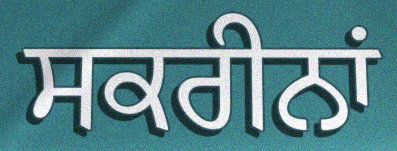
ਸਕਰੀਨਾਂ